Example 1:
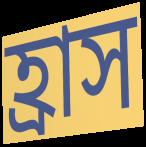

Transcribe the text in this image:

হ্রাস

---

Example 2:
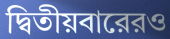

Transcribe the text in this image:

দ্বিতীয়বারেরও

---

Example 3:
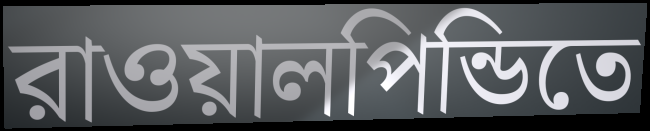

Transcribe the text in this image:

রাওয়ালপিন্ডিতে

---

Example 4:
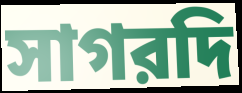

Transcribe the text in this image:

সাগরদি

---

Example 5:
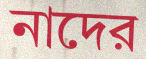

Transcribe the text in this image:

নাদের